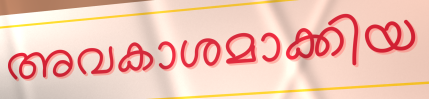
അവകാശമാക്കിയ